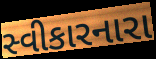
સ્વીકારનારા